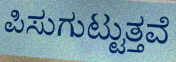
ಪಿಸುಗುಟ್ಟುತ್ತವೆ